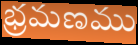
భ్రమణము